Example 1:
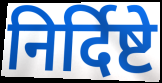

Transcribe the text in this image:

निर्दिष्टे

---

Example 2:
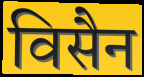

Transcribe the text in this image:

विसैन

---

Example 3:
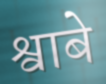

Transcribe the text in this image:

श्वाबे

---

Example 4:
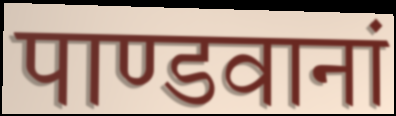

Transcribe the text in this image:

पाण्डवानां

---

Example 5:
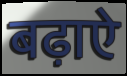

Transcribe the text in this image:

बढ़ाऐ